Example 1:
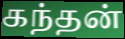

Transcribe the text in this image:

கந்தன்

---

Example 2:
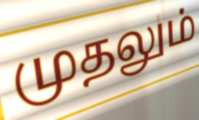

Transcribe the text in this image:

முதலும்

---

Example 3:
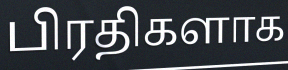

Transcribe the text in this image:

பிரதிகளாக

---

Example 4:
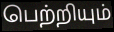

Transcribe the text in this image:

பெற்றியும்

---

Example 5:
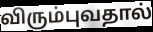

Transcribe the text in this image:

விரும்புவதால்